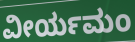
ವೀರ್ಯಮಂ